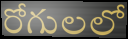
రోగులలో